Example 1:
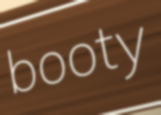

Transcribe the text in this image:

booty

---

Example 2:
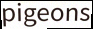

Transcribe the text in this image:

pigeons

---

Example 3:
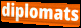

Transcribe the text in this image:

diplomats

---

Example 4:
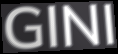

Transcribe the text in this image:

GINI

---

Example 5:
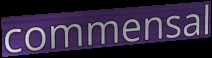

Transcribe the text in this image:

commensal